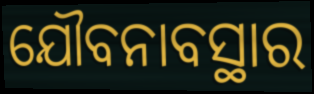
ଯୌବନାବସ୍ଥାର